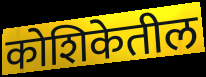
कोशिकेतील